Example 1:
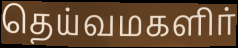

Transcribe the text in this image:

தெய்வமகளிர்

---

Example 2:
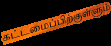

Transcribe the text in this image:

கட்டமைப்பிற்குள்ளும்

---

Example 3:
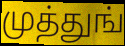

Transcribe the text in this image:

முத்துங்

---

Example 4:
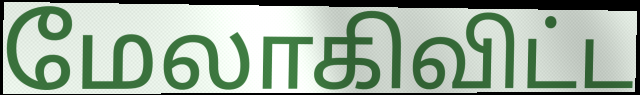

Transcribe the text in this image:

மேலாகிவிட்ட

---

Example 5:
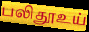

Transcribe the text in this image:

பலிதூஉய்